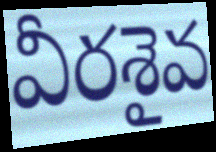
వీరశైవ